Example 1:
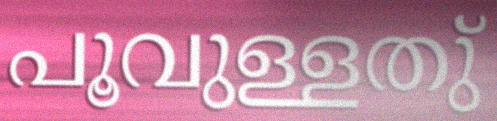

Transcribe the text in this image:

പൂവുള്ളതു്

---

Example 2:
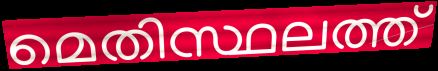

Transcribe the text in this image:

മെതിസ്ഥലത്ത്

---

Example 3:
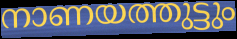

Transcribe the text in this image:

നാണയത്തുട്ടും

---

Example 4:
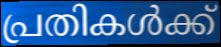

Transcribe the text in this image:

പ്രതികൾക്ക്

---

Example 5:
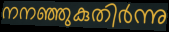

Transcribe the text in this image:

നനഞ്ഞുകുതിർന്നു